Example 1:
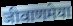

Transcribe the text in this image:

जीवाणमेया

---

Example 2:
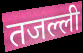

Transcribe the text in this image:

तजल्ली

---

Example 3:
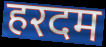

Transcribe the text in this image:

हरदम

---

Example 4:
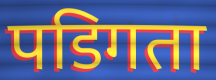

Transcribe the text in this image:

पडिगता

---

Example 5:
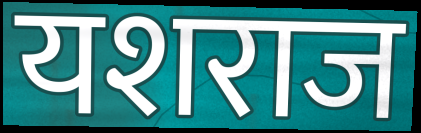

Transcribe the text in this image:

यशराज